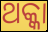
ଥକ୍କା